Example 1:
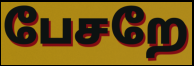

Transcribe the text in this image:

பேசறே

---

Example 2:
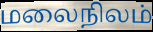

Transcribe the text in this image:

மலைநிலம்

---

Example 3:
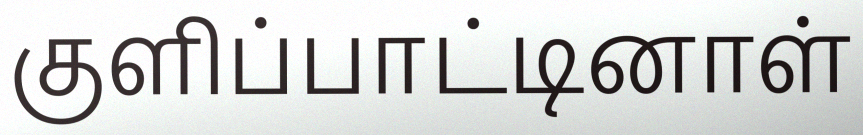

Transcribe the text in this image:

குளிப்பாட்டினாள்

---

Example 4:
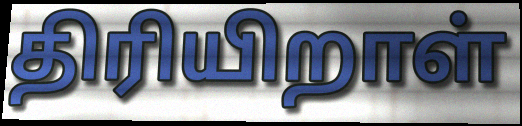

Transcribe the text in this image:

திரியிறாள்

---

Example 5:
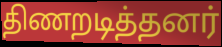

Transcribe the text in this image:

திணறடித்தனர்